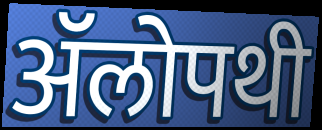
ॲॅलोपथी